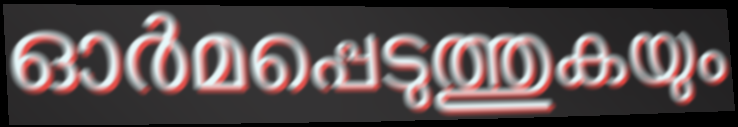
ഓർമപ്പെടുത്തുകയും